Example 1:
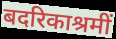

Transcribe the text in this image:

बदरिकाश्रमीं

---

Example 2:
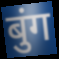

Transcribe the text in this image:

बुंग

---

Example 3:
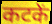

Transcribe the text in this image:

कटकें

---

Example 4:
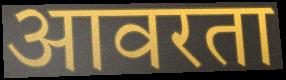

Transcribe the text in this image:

आवरता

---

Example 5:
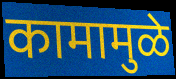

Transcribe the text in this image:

कामामुळे